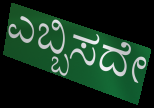
ಎಬ್ಬಿಸದೇ